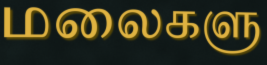
மலைகளு